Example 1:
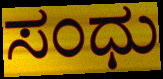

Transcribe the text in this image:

ಸಂಧು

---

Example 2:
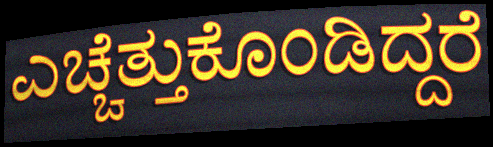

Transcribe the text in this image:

ಎಚ್ಚೆತ್ತುಕೊಂಡಿದ್ದರೆ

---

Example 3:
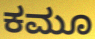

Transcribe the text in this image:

ಕಮೂ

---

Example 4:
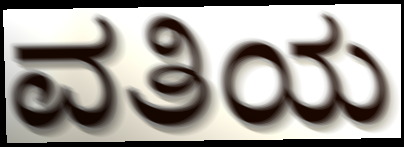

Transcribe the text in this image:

ವತಿಯ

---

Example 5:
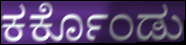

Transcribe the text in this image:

ಕರ್ಕೊಂಡು